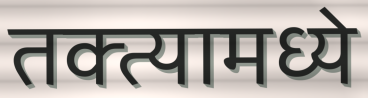
तक्‍त्यामध्ये